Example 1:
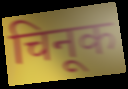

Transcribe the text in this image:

चिनूक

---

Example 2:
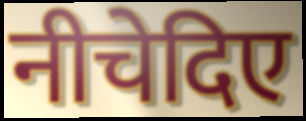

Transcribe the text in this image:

नीचेदिए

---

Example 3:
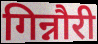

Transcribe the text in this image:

गिन्नौरी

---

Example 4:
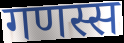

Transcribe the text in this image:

गणस्स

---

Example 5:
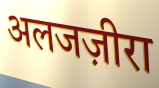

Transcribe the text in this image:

अलजज़ीरा